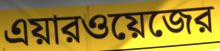
এয়ারওয়েজের